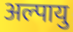
अल्पायु